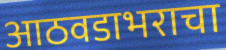
आठवडाभराचा